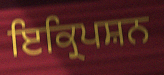
ਇਕ੍ਰਿਪਸ਼ਨ